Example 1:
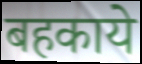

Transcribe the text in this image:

बहकाये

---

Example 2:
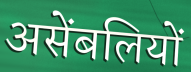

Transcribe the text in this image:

असेंबलियों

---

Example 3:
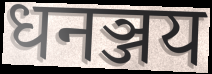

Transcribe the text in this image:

धनञ्जय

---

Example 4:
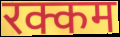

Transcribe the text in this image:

रक्कम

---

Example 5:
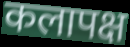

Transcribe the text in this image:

कलापक्ष